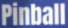
Pinball